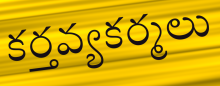
కర్తవ్యకర్మలు